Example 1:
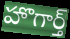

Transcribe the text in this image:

హొగార్త్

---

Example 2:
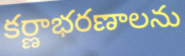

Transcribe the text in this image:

కర్ణాభరణాలను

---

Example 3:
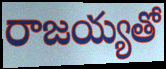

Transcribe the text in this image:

రాజయ్యతో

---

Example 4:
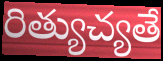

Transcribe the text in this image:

రిత్యుచ్యతే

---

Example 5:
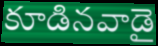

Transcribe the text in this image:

కూడినవాడై